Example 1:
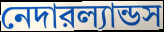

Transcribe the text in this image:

নেদারল্যান্ডস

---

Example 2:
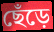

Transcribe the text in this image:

ছেঁড়ে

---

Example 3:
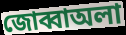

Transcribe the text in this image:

জোব্বাঅলা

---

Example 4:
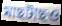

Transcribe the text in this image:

মাছটাছও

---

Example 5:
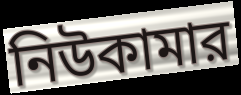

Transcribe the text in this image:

নিউকামার